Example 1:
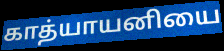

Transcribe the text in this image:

காத்யாயனியை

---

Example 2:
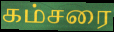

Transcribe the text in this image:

கம்சரை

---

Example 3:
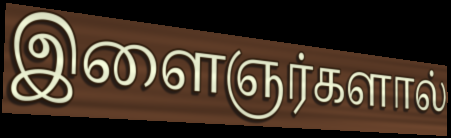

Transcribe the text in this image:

இளைஞர்களால்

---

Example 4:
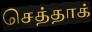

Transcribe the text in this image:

செத்தாக்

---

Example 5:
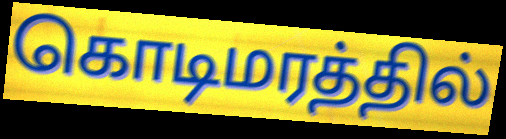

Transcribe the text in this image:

கொடிமரத்தில்